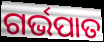
ଗର୍ଭପାତ